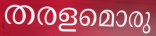
തരളമൊരു